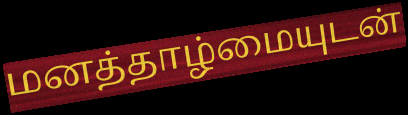
மனத்தாழ்மையுடன்